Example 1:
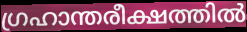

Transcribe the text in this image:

ഗ്രഹാന്തരീക്ഷത്തിൽ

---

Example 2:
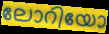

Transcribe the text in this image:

ലോറിയോ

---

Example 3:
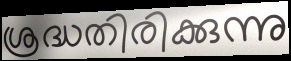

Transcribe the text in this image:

ശ്രദ്ധതിരിക്കുന്നു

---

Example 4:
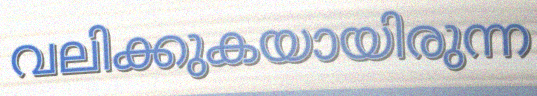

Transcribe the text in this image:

വലിക്കുകയായിരുന്ന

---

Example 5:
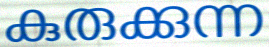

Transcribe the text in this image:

കുരുക്കുന്ന